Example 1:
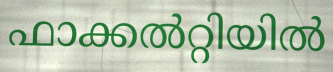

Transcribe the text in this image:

ഫാക്കൽറ്റിയിൽ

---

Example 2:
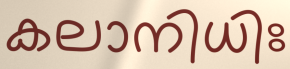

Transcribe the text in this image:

കലാനിധിഃ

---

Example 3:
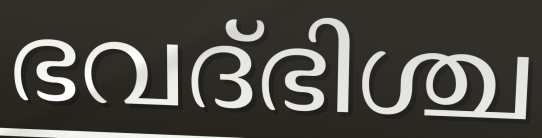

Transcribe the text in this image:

ഭവദ്ഭിശ്ച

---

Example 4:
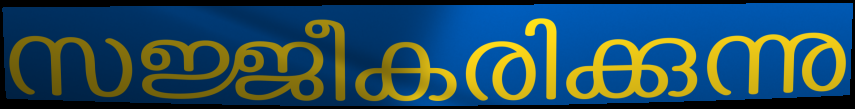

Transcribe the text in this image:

സജ്ജീകരിക്കുന്നു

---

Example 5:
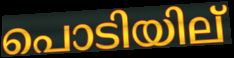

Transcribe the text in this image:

പൊടിയില്